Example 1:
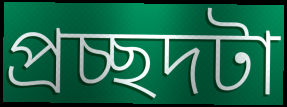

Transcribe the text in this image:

প্রচ্ছদটা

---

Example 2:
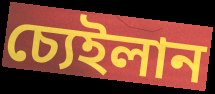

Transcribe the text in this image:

চ্যেইলান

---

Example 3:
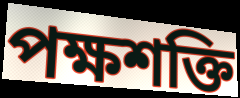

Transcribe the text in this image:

পক্ষশক্তি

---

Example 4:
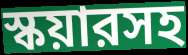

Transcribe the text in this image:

স্কয়ারসহ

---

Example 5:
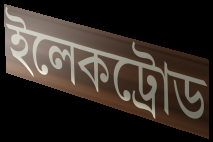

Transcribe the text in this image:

ইলেকট্রোড